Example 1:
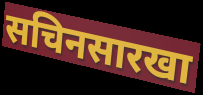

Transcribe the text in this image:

सचिनसारखा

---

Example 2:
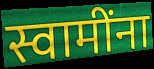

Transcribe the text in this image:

स्वामींना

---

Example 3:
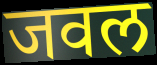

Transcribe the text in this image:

जवल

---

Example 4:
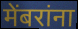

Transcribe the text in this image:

मेंबरांना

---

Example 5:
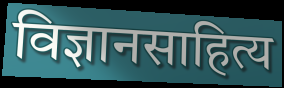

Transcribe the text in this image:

विज्ञानसाहित्य